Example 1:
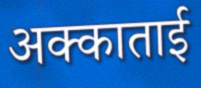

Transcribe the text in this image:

अक्काताई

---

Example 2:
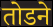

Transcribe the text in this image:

तोडने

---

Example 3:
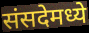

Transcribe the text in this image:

संसदेमध्ये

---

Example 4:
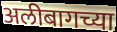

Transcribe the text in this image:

अलीबागच्या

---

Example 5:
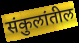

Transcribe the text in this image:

संकुलांतील